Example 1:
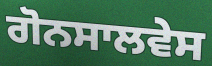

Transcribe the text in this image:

ਗੋਨਸਾਲਵੇਸ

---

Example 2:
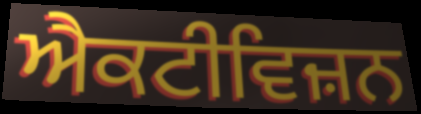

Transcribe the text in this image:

ਐਕਟੀਵਿਜ਼ਨ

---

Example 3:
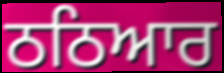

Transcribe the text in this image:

ਠਠਿਆਰ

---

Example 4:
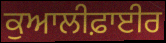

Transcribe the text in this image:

ਕੁਆਲੀਫ਼ਾਈਰ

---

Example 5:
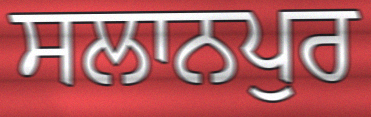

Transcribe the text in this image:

ਸਲਾਨਪੁਰ